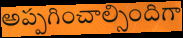
అప్పగించాల్సిందిగా